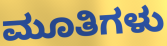
ಮೂತಿಗಳು